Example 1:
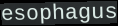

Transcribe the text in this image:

esophagus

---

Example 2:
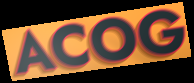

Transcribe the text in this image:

ACOG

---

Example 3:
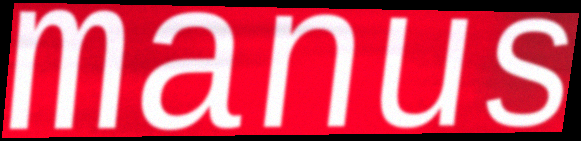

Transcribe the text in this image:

manus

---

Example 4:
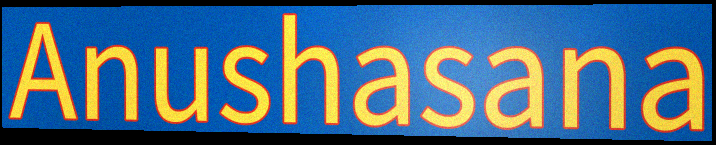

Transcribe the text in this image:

Anushasana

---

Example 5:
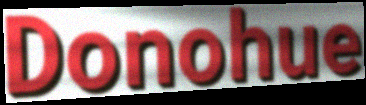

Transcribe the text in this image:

Donohue